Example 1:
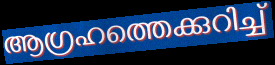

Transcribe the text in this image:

ആഗ്രഹത്തെക്കുറിച്ച്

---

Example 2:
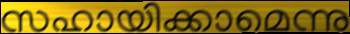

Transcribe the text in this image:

സഹായിക്കാമെന്നു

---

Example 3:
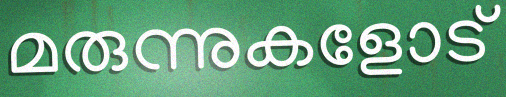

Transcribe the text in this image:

മരുന്നുകളോട്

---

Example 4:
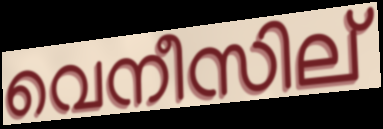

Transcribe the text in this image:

വെനീസില്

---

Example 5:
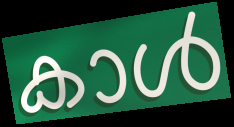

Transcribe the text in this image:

കാൾ